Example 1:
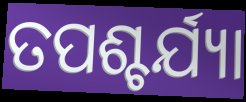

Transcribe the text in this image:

ତପଶ୍ଚର୍ଯ୍ୟା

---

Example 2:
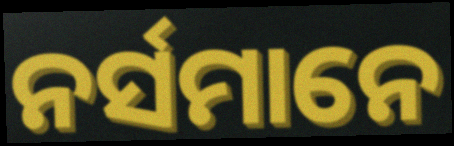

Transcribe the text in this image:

ନର୍ସମାନେ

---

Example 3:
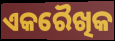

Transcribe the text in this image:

ଏକରୈଖିକ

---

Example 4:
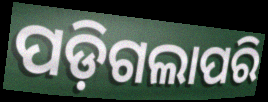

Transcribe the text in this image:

ପଡ଼ିଗଲାପରି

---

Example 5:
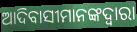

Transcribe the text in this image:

ଆଦିବାସୀମାନଙ୍କଦ୍ୱାରା